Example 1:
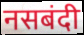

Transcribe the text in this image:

नसबंदी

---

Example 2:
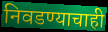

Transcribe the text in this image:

निवडण्याचाही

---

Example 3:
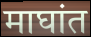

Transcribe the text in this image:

माघांत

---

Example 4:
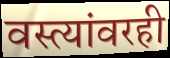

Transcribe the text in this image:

वस्त्यांवरही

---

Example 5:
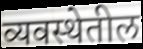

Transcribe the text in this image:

व्यवस्थेतील